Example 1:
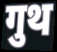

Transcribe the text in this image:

गुथ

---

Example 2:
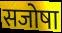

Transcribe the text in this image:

सजोषा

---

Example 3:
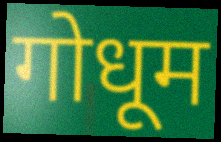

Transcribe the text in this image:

गोधूम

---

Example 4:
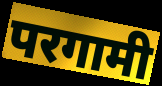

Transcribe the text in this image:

परगामी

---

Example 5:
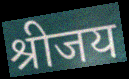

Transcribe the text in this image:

श्रीजय